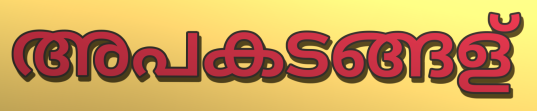
അപകടങ്ങള്